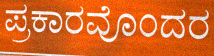
ಪ್ರಕಾರವೊಂದರ